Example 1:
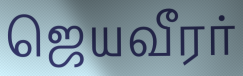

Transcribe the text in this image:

ஜெயவீரர்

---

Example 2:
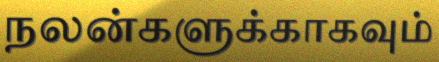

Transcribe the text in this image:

நலன்களுக்காகவும்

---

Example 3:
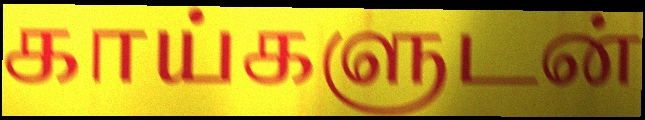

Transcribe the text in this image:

காய்களுடன்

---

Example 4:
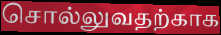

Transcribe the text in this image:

சொல்லுவதற்காக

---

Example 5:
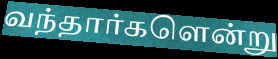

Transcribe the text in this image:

வந்தார்களென்று